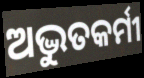
ଅଦ୍ଭୁତକର୍ମୀ